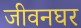
जीवनघर